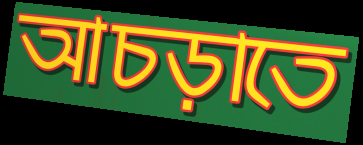
আচড়াতে